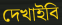
দেখাইবি